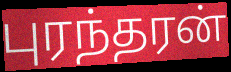
புரந்தரன்